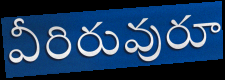
వీరిరువురూ